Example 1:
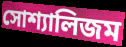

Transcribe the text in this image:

সোশ্যালিজম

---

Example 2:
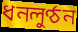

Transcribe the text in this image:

ধনলুণ্ঠন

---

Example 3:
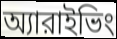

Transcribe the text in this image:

অ্যারাইভিং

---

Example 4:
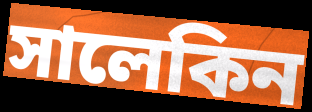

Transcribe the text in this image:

সালেকিন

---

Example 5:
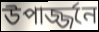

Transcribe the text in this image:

উপার্জ্জনে